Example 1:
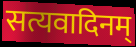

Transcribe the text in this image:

सत्यवादिनम्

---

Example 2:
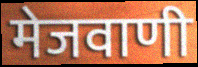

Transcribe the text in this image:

मेजवाणी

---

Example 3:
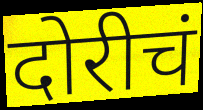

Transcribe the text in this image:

दोरीचं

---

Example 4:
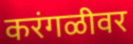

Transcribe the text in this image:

करंगळीवर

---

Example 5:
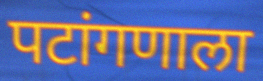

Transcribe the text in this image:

पटांगणाला